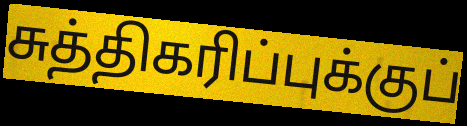
சுத்திகரிப்புக்குப்